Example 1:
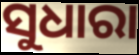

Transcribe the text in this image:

ସୁଧାରା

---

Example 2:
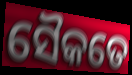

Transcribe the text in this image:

ସୈକତେ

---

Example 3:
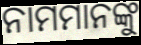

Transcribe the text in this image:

ନାମମାନଙ୍କୁ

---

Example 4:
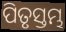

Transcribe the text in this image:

ପିତୃସ୍ତମ୍ଭ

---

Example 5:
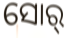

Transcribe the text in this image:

ସୋର୍